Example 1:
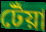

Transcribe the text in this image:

টেঁয়া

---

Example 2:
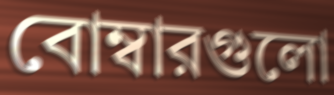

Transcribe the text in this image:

বোম্বারগুলো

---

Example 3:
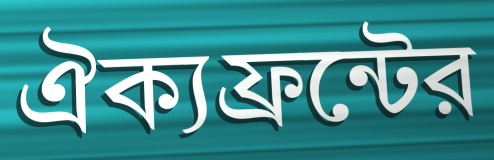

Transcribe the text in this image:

ঐক্যফ্রন্টের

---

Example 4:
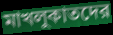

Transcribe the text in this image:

মাখলুকাতদের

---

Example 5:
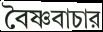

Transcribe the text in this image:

বৈষ্ণবাচার